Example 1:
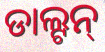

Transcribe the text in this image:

ଡାଲ୍ଟନ୍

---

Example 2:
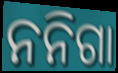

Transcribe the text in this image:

ନନିଗା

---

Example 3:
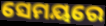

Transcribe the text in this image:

ସେମୟରେ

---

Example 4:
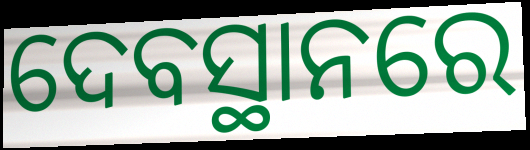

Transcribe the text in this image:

ଦେବସ୍ଥାନରେ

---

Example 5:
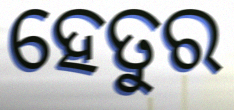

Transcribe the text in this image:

ହେତୁର